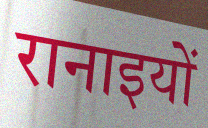
रानाइयों